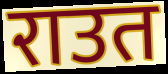
राउत